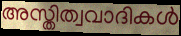
അസ്തിത്വവാദികൾ